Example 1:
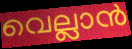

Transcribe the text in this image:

വെല്ലാൻ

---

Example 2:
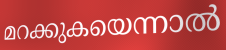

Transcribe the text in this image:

മറക്കുകയെന്നാൽ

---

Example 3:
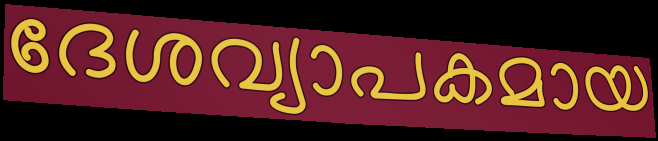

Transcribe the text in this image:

ദേശവ്യാപകമായ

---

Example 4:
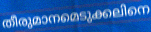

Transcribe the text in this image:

തീരുമാനമെടുക്കലിനെ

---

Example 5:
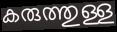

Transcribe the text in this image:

കരുത്തുള്ള